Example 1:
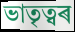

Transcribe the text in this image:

ভাতৃত্বৰ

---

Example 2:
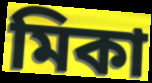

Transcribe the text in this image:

মিকা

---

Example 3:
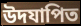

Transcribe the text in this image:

উদযাপিত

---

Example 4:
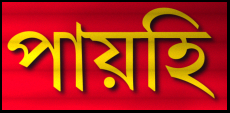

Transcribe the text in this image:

পায়হি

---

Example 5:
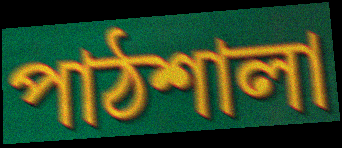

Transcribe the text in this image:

পাঠশালা